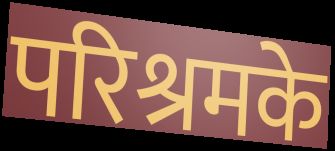
परिश्रमके